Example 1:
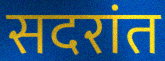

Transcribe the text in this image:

सदरांत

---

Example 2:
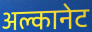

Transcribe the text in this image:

अल्कानेट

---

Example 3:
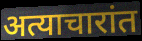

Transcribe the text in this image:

अत्याचारांत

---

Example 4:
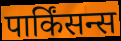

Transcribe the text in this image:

पार्किंसन्स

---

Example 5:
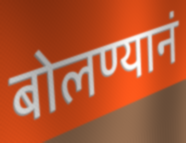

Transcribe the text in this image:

बोलण्यानं